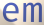
em